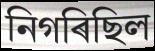
নিগৰিছিল